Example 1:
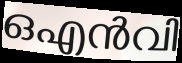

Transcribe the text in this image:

ഒഎൻവി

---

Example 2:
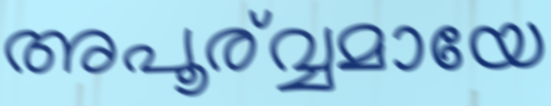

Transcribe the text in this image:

അപൂര്വ്വമായേ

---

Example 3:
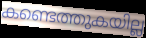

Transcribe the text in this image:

കണ്ടെത്തുകയില്ല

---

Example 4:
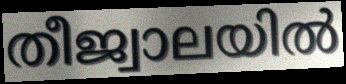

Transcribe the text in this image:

തീജ്വാലയിൽ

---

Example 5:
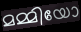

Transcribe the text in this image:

മമ്മിയോ